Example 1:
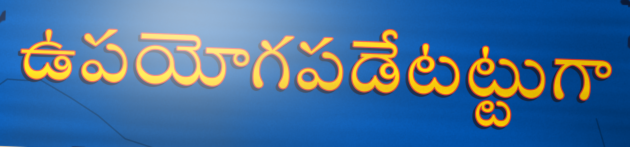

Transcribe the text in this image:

ఉపయోగపడేటట్టుగా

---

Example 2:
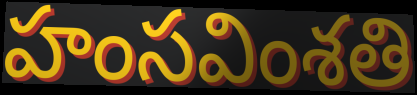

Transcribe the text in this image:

హంసవింశతి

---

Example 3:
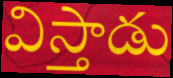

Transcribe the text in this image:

విస్తాడు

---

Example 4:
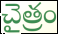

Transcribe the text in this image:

చైత్రం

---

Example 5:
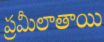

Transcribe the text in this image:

ప్రమీలాతాయి